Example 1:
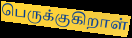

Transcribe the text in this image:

பெருக்குகிறாள்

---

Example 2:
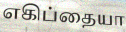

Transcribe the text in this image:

எகிப்தையா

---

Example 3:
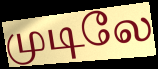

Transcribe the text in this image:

முடிலே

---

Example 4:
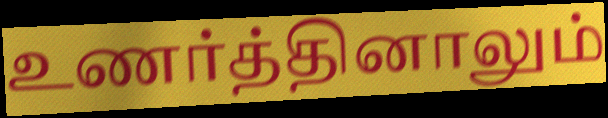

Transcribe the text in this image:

உணர்த்தினாலும்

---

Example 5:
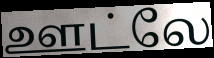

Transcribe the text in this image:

ஊட்லே